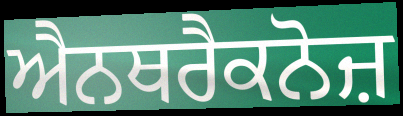
ਐਨਥਰੈਕਨੋਜ਼